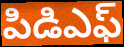
పిడిఎఫ్